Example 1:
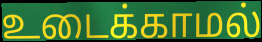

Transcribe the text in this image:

உடைக்காமல்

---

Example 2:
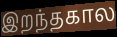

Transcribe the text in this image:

இறந்தகால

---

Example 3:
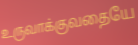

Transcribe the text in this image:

உருவாக்குவதையே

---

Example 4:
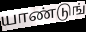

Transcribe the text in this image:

யாண்டுங்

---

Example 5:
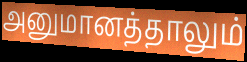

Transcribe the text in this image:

அனுமானத்தாலும்